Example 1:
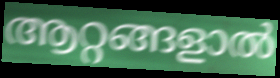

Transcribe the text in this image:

ആറ്റങ്ങളാൽ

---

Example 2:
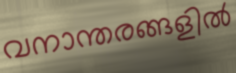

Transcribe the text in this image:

വനാന്തരങ്ങളിൽ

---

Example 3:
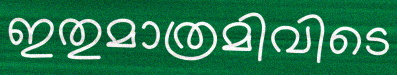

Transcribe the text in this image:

ഇതുമാത്രമിവിടെ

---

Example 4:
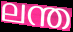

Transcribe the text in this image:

ലന്ത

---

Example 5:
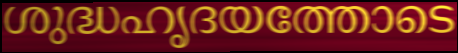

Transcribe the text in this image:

ശുദ്ധഹൃദയത്തോടെ